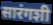
सारंगशी